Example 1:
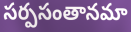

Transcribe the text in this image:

సర్పసంతానమా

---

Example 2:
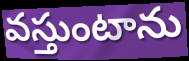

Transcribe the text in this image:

వస్తుంటాను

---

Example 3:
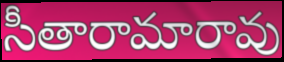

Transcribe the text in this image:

సీతారామారావు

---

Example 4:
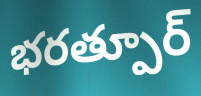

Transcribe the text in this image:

భరత్పూర్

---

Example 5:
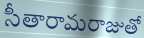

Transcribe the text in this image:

సీతారామరాజుతో